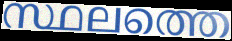
സ്ഥലത്തെ